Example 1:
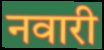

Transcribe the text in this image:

नवारी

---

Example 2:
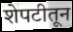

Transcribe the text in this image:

शेपटीतून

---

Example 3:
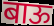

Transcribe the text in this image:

बाऊ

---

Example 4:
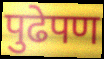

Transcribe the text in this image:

पुढेपण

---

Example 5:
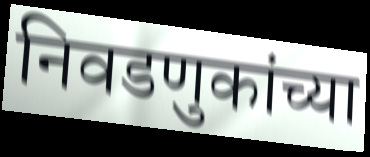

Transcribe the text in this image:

निवडणुकांच्या